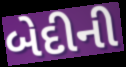
બેદીની